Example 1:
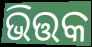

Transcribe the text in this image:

ଭିତ୍ତକ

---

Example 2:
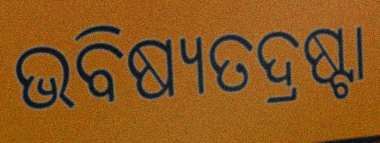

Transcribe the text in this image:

ଭବିଷ୍ୟତଦ୍ରଷ୍ଟା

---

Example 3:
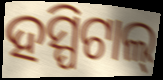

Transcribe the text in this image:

ହସ୍ପିଟାଲ୍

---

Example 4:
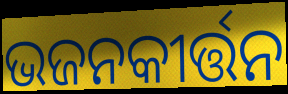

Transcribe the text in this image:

ଭଜନକୀର୍ତ୍ତନ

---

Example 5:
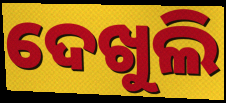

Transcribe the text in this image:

ଦେଖୁଲି